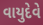
વાયુદેવે